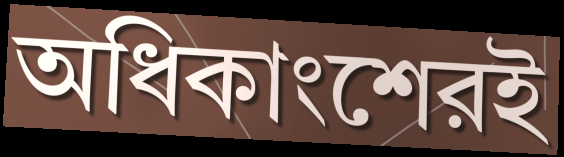
অধিকাংশেরই